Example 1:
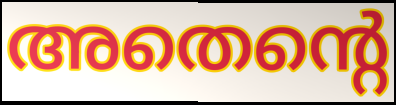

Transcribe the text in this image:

അതെന്റെ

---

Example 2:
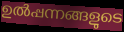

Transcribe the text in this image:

ഉൽപ്പന്നങ്ങളുടെ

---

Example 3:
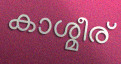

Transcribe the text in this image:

കാശ്മീര്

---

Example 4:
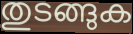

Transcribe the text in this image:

തുടങ്ങുക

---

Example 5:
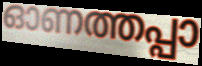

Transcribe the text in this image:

ഓണത്തപ്പാ